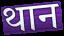
थान